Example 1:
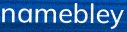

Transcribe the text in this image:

namebley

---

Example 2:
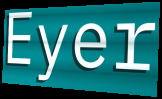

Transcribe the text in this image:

Eyer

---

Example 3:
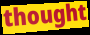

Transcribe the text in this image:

thought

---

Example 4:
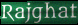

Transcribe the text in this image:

Rajghat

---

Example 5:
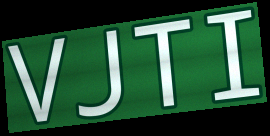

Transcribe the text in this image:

VJTI